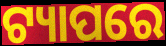
ଟ୍ୟାପରେ